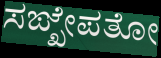
ಸಙ್ಖೇಪತೋ